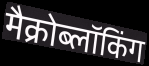
मैक्रोब्लॉकिंग